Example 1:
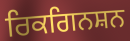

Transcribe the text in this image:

ਰਿਕਗਿਨਸ਼ਨ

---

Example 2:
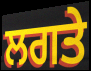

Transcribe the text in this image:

ਲਗਤੇ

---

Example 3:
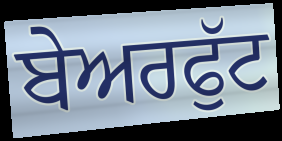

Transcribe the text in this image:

ਬੇਅਰਫੁੱਟ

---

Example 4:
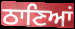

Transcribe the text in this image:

ਠਾਣਿਆਂ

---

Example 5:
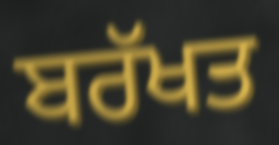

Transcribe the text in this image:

ਬਰੱਖਤ